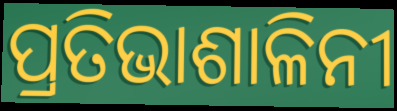
ପ୍ରତିଭାଶାଳିନୀ